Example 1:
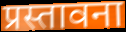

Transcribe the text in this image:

प्रस्तावना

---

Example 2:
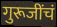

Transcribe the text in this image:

गुरूजींचं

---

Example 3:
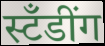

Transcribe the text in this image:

स्टँडींग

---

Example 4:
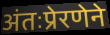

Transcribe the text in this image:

अंतःप्रेरणेने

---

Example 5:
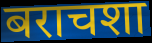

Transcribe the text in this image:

बराचशा